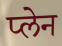
प्लेन